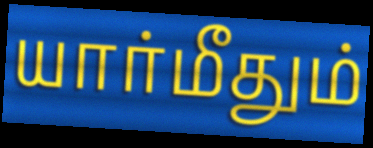
யார்மீதும்